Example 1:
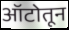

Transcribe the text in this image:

ऑटोतून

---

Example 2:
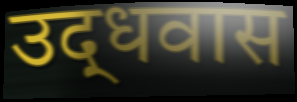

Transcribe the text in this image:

उद्धवास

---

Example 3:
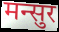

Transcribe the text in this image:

मन्सुर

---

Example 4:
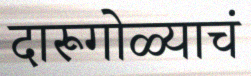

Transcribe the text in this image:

दारूगोळ्याचं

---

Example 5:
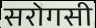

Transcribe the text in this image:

सरोगसी